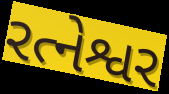
રત્નેશ્વર